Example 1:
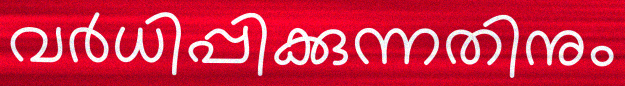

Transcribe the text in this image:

വർധിപ്പിക്കുന്നതിനും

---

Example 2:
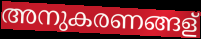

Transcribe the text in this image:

അനുകരണങ്ങള്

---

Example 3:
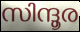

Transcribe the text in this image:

സിന്ദൂര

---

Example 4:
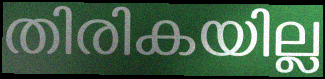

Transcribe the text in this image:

തിരികയില്ല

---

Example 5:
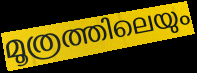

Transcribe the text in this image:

മൂത്രത്തിലെയും